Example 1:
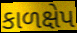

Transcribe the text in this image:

કાળક્ષેપ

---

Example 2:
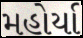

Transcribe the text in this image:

મહોર્યા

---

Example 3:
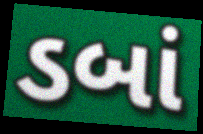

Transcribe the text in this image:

ડબાં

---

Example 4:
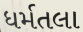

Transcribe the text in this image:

ધર્મતલા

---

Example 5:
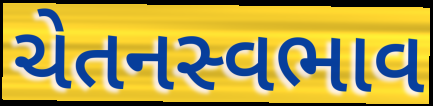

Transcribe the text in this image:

ચેતનસ્વભાવ